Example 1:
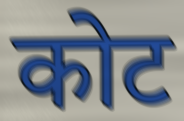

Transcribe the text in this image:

कोट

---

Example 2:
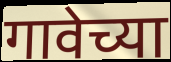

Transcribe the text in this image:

गावेच्या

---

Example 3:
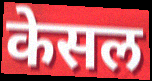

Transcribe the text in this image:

केसल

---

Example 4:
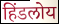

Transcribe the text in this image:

हिंडलोय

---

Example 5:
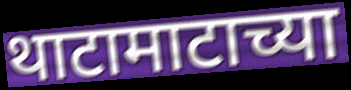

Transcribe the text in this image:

थाटामाटाच्या